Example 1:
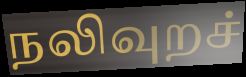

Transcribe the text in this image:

நலிவுறச்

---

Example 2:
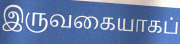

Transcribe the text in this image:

இருவகையாகப்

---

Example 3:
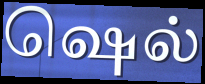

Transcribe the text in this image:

ஷெல்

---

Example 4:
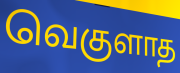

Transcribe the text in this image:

வெகுளாத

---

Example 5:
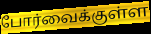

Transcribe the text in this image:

போர்வைக்குள்ள